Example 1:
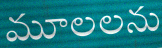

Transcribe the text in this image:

మూలలను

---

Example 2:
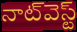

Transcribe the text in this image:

నాట్‌వెస్ట్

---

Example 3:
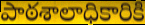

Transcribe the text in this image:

పాఠశాలాధికారికి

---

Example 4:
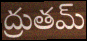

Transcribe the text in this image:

ద్రుతమ్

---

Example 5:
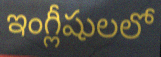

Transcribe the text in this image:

ఇంగ్లీషులలో